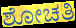
ಶೋಚತಿ